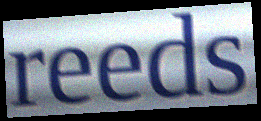
reeds